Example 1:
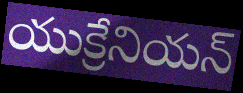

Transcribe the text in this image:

యుక్రేనియన్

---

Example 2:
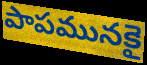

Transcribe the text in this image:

పాపమునకై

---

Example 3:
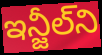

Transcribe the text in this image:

ఇన్జీల్‌ని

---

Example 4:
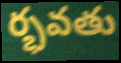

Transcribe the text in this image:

ర్భవతు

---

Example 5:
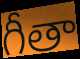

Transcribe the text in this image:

గీతా